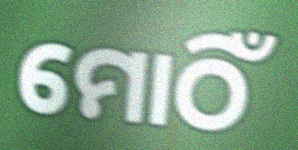
ମୋଠିଁ